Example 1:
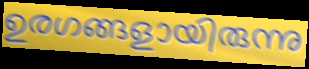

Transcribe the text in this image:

ഉരഗങ്ങളായിരുന്നു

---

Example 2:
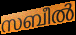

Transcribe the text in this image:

സബീൽ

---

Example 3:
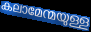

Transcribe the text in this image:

കലാമേന്മയുള്ള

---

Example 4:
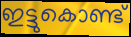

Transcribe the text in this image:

ഇട്ടുകൊണ്ട്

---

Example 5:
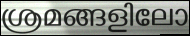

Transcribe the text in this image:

ശ്രമങ്ങളിലോ